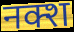
नक्श